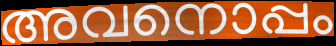
അവനൊപ്പം